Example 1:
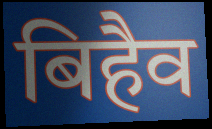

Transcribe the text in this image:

बिहैव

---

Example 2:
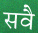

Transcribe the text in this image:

सवै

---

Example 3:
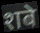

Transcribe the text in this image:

शबे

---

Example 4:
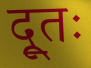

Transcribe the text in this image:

दू॒तः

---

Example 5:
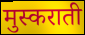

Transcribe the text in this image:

मुस्कराती